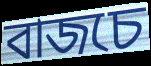
বাজচে